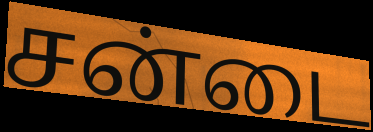
சன்டை